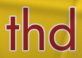
thd